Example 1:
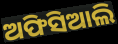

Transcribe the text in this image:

ଅଫିସିଆଲି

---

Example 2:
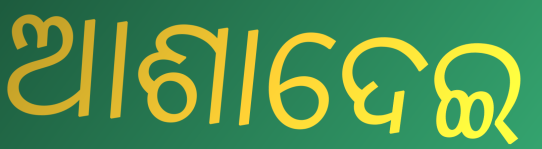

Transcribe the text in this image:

ଆଶାଦେଇ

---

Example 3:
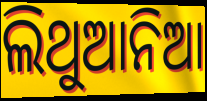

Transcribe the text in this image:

ଲିଥୁଆନିଆ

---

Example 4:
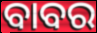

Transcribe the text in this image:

ବାବର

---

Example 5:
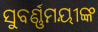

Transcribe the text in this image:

ସୁବର୍ଣ୍ଣମୟୀଙ୍କ